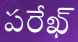
పరేఖ్